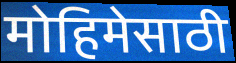
मोहिमेसाठी